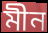
মীন